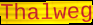
Thalweg